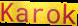
Karok